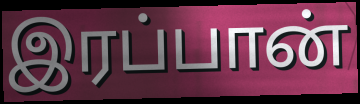
இரப்பான்